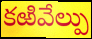
కఱివేల్పు